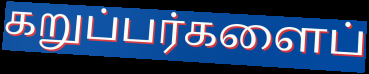
கறுப்பர்களைப்